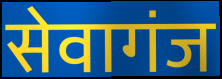
सेवागंज